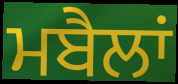
ਮਬੈਲਾਂ